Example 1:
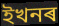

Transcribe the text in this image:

ইখনৰ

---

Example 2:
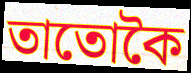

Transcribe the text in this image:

তাতোকৈ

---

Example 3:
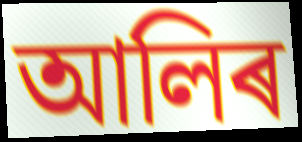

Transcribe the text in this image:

আলিৰ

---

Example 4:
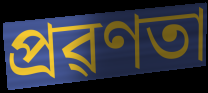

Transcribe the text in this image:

প্ৰৱণতা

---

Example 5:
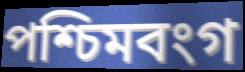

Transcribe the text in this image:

পশ্চিমবংগ